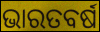
ଭାରତବର୍ଷ